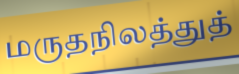
மருதநிலத்துத்